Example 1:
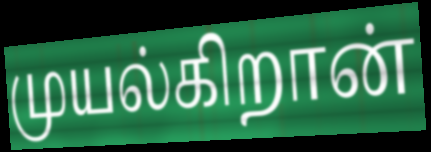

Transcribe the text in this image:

முயல்கிறான்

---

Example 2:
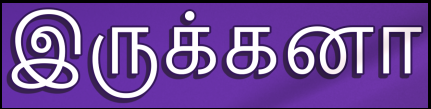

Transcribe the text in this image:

இருக்கனா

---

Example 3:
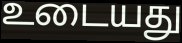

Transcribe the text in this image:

உடையது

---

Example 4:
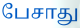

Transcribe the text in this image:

பேசாது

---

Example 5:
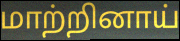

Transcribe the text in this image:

மாற்றினாய்